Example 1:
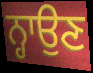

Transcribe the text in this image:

ਨ੍ਹਾਉਣ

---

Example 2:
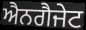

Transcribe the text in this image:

ਐਨਗੈਜੇਟ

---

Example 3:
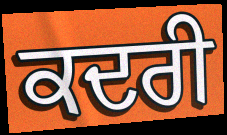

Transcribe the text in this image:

ਕਦਰੀ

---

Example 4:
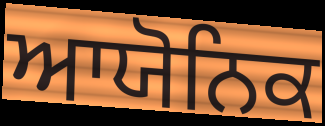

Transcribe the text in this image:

ਆਯੋਨਿਕ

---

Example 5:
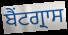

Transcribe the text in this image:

ਬੈਂਟਗ੍ਰਾਸ